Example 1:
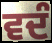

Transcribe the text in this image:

ਵਦੰ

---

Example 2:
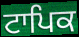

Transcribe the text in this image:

ਟਾਪਿਕ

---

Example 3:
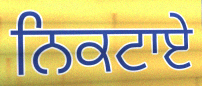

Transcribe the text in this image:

ਨਿਕਟਾਏ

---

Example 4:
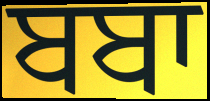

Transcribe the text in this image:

ਬਬਾ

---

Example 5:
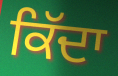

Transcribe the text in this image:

ਕਿੱਦਾ